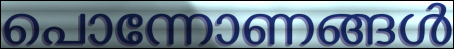
പൊന്നോണങ്ങൾ